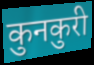
कुनकुरी